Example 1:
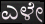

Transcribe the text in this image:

ಎಳೇ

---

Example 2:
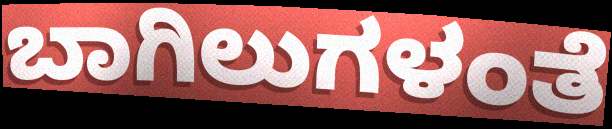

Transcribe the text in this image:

ಬಾಗಿಲುಗಳಂತೆ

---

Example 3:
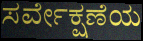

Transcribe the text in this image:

ಸರ್ವೇಕ್ಷಣೆಯ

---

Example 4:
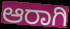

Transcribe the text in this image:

ಆರಾಗಿ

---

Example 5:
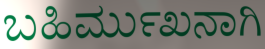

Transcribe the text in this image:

ಬಹಿರ್ಮುಖನಾಗಿ